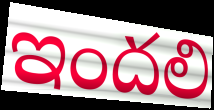
ఇందలి